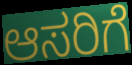
ಆಸರಿಗೆ